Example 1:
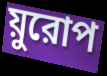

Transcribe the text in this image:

য়ুরোপ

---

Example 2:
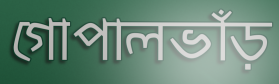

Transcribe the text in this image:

গোপালভাঁড়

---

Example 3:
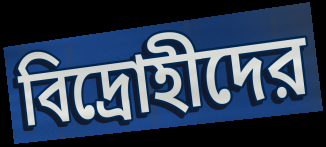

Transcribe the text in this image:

বিদ্রোহীদের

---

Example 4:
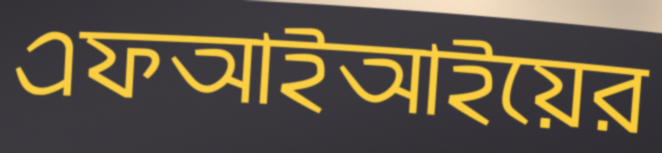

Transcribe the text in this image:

এফআইআইয়ের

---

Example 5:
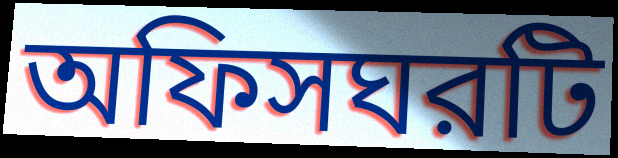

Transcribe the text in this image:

অফিসঘরটি